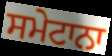
ਸਮੇਟਾਨਾ